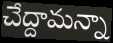
చేద్దామన్నా